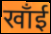
खाँई